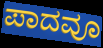
ಪಾದವೂ